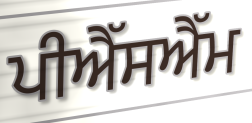
ਪੀਐੱਸਐੱਮ